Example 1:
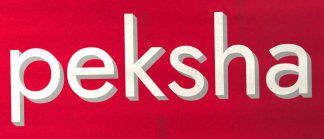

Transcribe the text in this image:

peksha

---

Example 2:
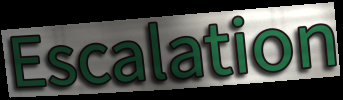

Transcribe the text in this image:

Escalation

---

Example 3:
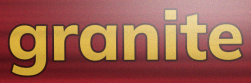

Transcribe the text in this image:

granite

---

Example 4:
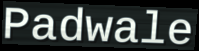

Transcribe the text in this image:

Padwale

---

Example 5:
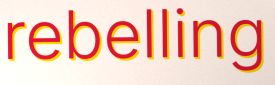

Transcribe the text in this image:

rebelling